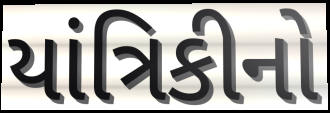
યાંત્રિકીનો